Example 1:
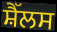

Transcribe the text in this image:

ਸ਼ੈੱਲਸ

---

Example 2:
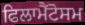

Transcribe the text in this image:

ਫਿਲਾਮੈਂਟੋਸਮ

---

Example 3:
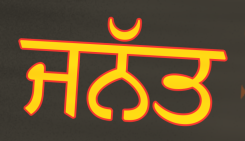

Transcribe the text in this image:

ਜਨੱਤ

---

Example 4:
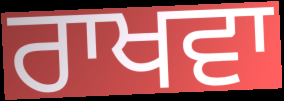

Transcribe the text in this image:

ਰਾਖਵਾ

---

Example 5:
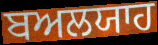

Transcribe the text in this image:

ਬਅਲਯਾਹ